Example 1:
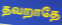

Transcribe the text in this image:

தவறாதே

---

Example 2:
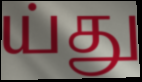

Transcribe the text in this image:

ய்து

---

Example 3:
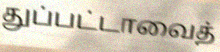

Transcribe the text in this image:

துப்பட்டாவைத்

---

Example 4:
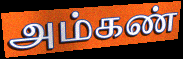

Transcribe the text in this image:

அம்கண்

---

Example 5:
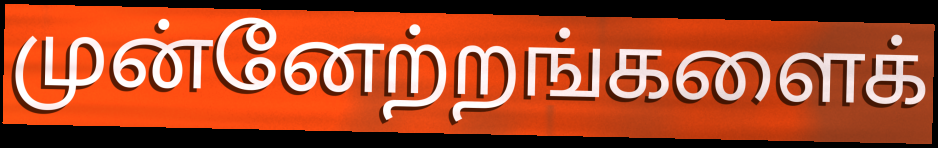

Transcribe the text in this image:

முன்னேற்றங்களைக்